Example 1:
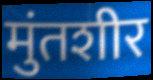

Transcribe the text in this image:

मुंतशीर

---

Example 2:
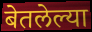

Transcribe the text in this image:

बेतलेल्या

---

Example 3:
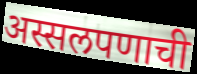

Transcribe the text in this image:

अस्सलपणाची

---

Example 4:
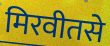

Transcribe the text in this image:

मिरवीतसे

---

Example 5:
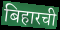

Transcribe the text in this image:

बिहारची